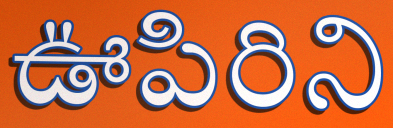
ఊపిరిని